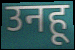
उनहू